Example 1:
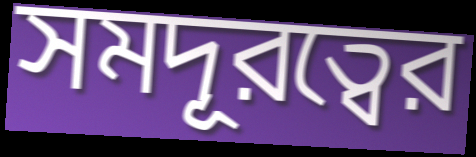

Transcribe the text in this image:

সমদূরত্বের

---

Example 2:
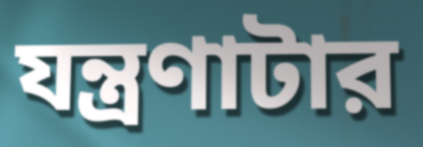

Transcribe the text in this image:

যন্ত্রণাটার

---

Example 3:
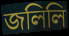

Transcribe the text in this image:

জলিলি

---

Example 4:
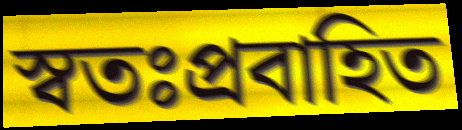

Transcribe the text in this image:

স্বতঃপ্রবাহিত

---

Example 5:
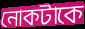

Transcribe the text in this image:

নোকটাকে